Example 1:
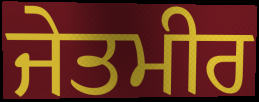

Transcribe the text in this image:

ਜੇਤਮੀਰ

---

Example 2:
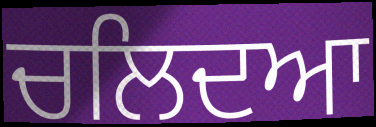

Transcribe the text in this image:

ਚਲਿਦਆ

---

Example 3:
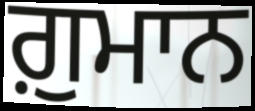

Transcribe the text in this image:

ਗ਼ੁਮਾਨ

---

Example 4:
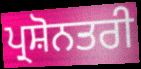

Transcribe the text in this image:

ਪ੍ਰਸ਼ੋਨਤਰੀ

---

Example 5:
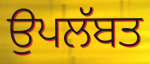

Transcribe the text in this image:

ਉਪਲੱਬਤ